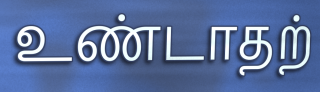
உண்டாதற்